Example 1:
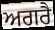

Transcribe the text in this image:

ਅਗਰੈ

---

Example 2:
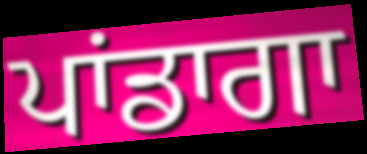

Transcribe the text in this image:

ਪਾਂਡਾਗਾ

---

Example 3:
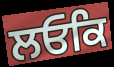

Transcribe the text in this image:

ਲਓਕਿ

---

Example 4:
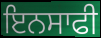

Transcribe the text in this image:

ਇਨਸਾਫੀ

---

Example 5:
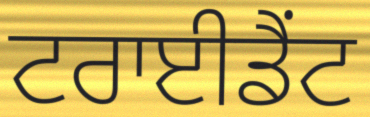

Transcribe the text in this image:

ਟਰਾਈਡੈਂਟ